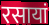
रसायां